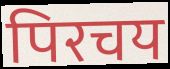
पिरचय